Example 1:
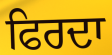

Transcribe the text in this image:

ਫਿਰਦਾ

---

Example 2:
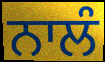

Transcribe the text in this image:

ਨਾਲੰ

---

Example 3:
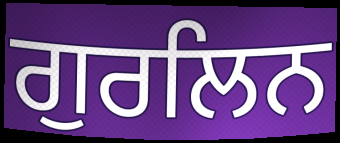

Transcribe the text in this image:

ਗੁਰਲਿਨ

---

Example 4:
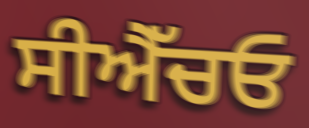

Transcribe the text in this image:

ਸੀਐੱਚਓ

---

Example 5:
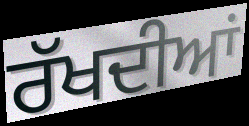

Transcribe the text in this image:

ਰੱਖਦੀਆਂ